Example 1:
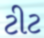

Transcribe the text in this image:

ટીટ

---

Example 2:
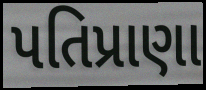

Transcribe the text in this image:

પતિપ્રાણા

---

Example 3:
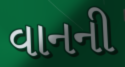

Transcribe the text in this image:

વાનની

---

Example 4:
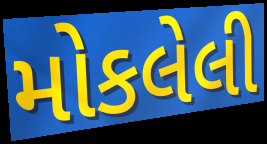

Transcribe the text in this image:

મોકલેલી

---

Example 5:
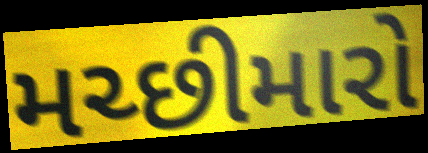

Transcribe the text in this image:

મચ્છીમારો